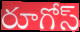
రూగోస్